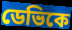
ডেভিকে